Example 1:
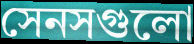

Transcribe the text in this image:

সেনসগুলো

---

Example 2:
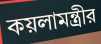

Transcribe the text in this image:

কয়লামন্ত্রীর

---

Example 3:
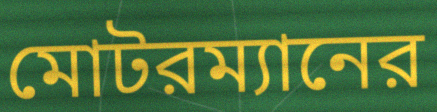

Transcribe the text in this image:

মোটরম্যানের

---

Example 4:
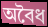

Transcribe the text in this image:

অবৈধ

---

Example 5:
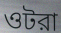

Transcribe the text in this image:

ওটরা